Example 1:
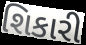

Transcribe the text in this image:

શિકારી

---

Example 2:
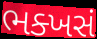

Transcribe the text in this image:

ભક્ખસં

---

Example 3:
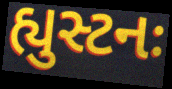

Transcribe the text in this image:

હ્યુસ્ટનઃ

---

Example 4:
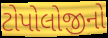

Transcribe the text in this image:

ટોપોલોજીનો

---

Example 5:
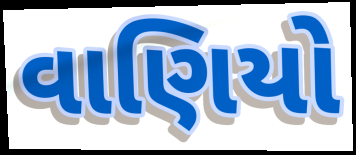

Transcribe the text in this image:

વાણિયો